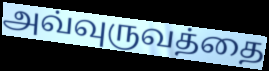
அவ்வுருவத்தை